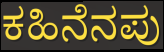
ಕಹಿನೆನಪು